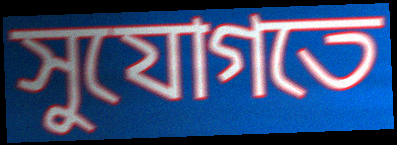
সুযোগতে